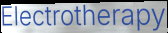
Electrotherapy